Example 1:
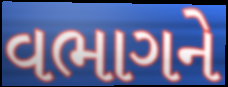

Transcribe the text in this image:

વભાગને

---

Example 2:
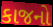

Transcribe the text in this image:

કાજનો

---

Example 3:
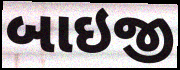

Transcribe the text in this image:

બાઇજી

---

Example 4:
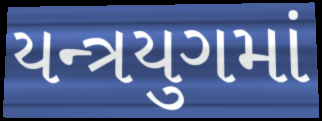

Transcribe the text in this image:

યન્ત્રયુગમાં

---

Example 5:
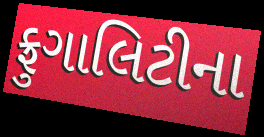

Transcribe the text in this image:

ફ્રુગાલિટીના